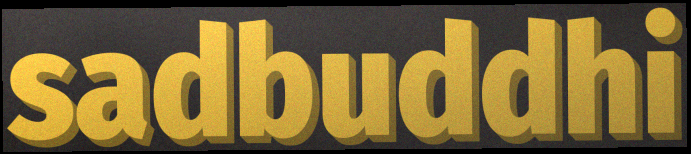
sadbuddhi